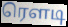
ரெளடி